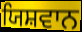
ਯਿਸ਼ਵਾਨ